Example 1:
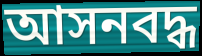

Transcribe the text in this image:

আসনবদ্ধ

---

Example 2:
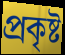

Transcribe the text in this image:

প্রকৃষ্ট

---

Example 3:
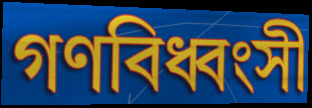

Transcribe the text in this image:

গণবিধ্বংসী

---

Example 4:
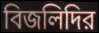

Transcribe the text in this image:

বিজলিদির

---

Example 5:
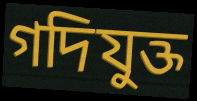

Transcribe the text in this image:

গদিযুক্ত